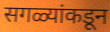
सगळ्यांकडून